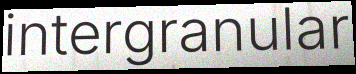
intergranular